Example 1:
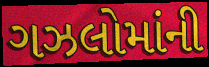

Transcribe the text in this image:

ગઝલોમાંની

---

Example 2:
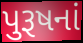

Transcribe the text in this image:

પુરૂષનાં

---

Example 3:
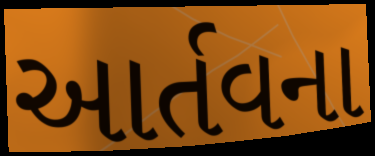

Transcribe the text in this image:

આર્તવના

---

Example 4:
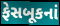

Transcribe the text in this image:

ફેસબૂકનાં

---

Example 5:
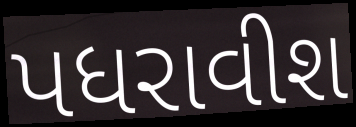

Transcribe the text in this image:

પધરાવીશ